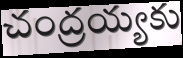
చంద్రయ్యకు